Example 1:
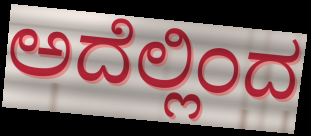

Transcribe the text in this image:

ಅದೆಲ್ಲಿಂದ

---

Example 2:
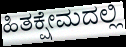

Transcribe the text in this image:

ಹಿತಕ್ಷೇಮದಲ್ಲಿ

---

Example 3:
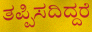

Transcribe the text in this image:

ತಪ್ಪಿಸದಿದ್ದರೆ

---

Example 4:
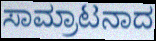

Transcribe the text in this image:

ಸಾಮ್ರಾಟನಾದ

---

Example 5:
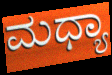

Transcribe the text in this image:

ಮಧ್ಯಾ